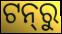
ଟନ୍‍ରୁ